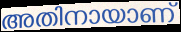
അതിനായാണ്